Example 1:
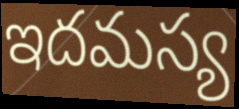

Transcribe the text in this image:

ఇదమస్య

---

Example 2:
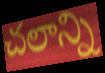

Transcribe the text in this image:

చలాన్ని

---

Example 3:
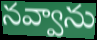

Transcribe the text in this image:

నవ్వాను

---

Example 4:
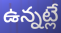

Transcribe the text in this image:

ఉన్నట్లే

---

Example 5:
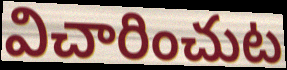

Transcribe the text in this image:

విచారించుట